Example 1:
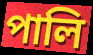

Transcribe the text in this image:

পালি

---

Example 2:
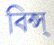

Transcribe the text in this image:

বিন্স্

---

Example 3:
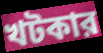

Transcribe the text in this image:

খটকার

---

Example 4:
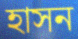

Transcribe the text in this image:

হাসন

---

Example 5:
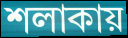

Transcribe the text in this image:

শলাকায়